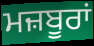
ਮਜ਼ਬੂਰਾਂ